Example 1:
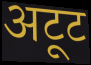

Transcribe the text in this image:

अटूट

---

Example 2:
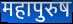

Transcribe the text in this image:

महापुरुष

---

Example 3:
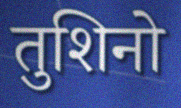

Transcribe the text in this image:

तुशिनो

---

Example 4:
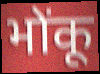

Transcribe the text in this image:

भोंकू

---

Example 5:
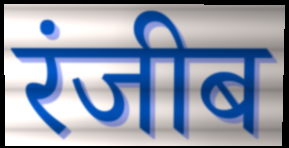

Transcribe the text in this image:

रंजीब